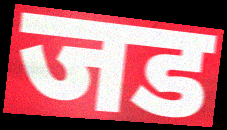
जड